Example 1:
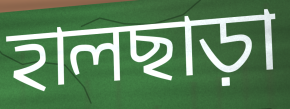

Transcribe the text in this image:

হালছাড়া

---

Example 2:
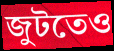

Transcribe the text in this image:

জুটতেও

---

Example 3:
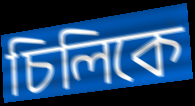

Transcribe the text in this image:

চিলিকে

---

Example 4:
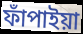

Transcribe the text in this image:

ফাঁপাইয়া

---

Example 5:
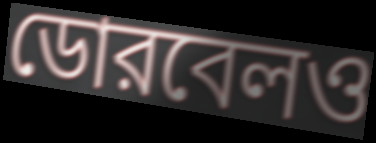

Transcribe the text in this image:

ডোরবেলও